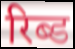
रिब्ड